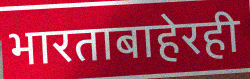
भारताबाहेरही